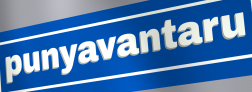
punyavantaru